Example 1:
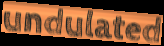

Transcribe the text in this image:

undulated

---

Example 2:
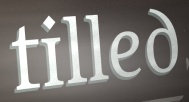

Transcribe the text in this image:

tilled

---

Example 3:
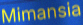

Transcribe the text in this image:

Mimansia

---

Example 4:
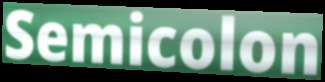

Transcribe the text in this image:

Semicolon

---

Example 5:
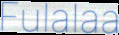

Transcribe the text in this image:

Fulalaa